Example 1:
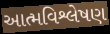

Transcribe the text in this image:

આત્મવિશ્લેષણ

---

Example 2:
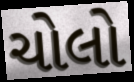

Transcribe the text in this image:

ચોલો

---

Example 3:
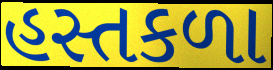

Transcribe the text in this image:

હસ્તકળા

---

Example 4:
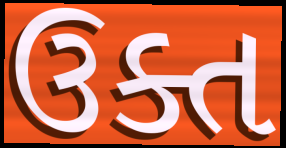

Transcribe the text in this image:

ઉક્ત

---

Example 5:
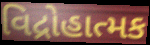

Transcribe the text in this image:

વિદ્રોહાત્મક